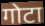
गोटा